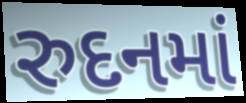
રુદનમાં